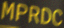
MPRDC